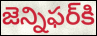
జెన్నిఫర్‌కి